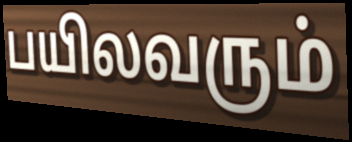
பயிலவரும்